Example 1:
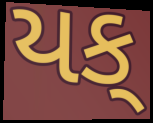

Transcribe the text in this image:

યક્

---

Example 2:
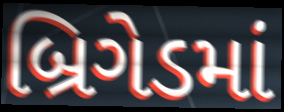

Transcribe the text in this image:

બ્રિગેડમાં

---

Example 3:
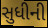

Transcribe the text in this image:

સુધીની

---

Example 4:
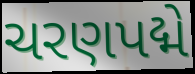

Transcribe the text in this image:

ચરણપદ્મે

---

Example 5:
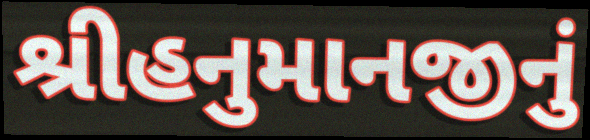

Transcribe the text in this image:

શ્રીહનુમાનજીનું